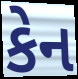
કેન